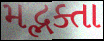
મદ્ભક્તા